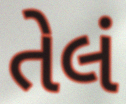
તેલં